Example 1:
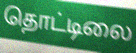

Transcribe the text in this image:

தொட்டிலை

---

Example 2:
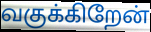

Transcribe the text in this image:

வகுக்கிறேன்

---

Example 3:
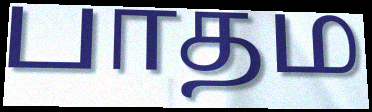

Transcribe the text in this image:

பாதம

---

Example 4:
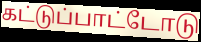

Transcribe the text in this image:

கட்டுப்பாட்டோடு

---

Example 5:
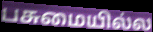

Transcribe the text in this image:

பசுமையில்ல